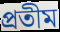
প্ৰতীম